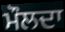
ਮੌਲਦਾ